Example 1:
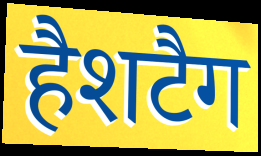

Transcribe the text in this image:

हैशटैग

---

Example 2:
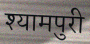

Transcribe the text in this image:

श्यामपुरी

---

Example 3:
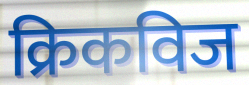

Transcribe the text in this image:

क्रिकविज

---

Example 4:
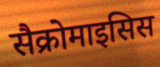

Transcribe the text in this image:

सैक्रोमाइसिस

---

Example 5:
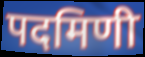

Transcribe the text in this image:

पदमिणी